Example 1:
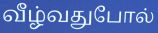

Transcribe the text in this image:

வீழ்வதுபோல்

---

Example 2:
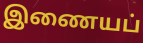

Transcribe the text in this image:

இணையப்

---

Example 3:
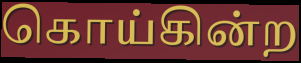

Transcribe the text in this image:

கொய்கின்ற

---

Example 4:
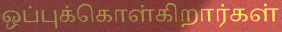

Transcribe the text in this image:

ஒப்புக்கொள்கிறார்கள்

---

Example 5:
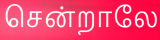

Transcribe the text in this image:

சென்றாலே